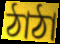
ঠাঠা